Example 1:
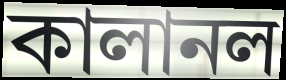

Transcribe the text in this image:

কালানল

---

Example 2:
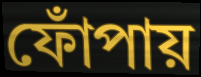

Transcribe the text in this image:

ফোঁপায়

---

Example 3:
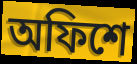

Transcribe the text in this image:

অফিশে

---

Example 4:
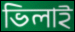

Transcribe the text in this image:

ভিলাই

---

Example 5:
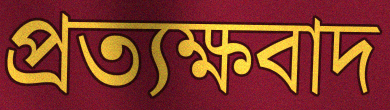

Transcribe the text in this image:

প্রত্যক্ষবাদ